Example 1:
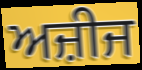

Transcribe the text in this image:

ਅਜ਼ੀਜ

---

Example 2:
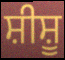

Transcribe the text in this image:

ਸ਼ੀਸ਼ੂ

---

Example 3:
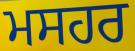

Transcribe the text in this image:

ਮਸਹਰ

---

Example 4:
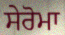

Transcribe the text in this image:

ਸੇਰੋਮਾ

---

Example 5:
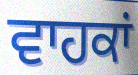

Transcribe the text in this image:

ਵਾਹਕਾਂ